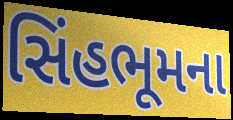
સિંહભૂમના